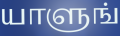
யாளுங்